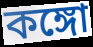
কঙ্গো